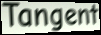
Tangent